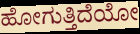
ಹೋಗುತ್ತಿದೆಯೋ